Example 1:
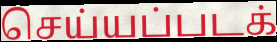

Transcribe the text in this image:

செய்யப்படக்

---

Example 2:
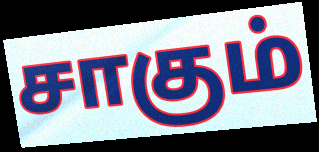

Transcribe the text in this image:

சாகும்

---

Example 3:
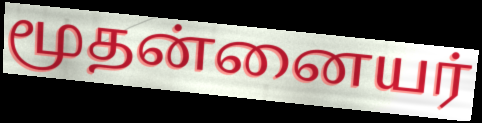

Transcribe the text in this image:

மூதன்னையர்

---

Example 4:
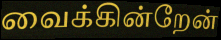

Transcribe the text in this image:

வைக்கின்றேன்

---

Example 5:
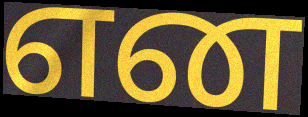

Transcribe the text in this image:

என